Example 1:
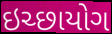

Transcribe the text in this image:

ઇચ્છાયોગ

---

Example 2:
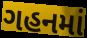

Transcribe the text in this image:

ગહનમાં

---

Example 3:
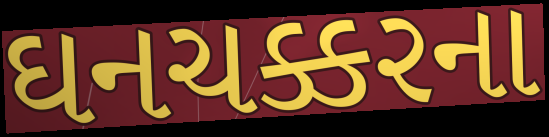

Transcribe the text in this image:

ઘનચક્કરના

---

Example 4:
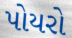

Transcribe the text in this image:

પોયરો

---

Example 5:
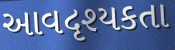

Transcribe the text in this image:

આવદૃશ્યકતા